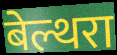
बेल्थरा